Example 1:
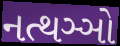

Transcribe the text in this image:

નત્થઞ્ઞો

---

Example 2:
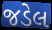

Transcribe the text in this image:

જડેલ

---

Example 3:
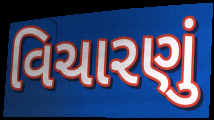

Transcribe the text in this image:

વિચારણું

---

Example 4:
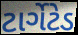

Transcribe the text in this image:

ટાર્ગેટેડ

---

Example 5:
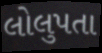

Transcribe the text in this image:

લોલુપતા